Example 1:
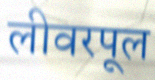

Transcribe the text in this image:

लीवरपूल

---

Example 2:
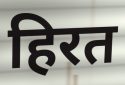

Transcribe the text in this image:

हिरत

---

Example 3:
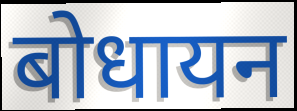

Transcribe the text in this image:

बोधायन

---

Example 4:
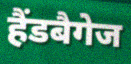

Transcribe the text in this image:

हैंडबैगेज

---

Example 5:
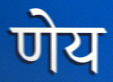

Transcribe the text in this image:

णेय